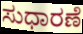
ಸುಧಾರಣೆ